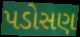
પડોસણ